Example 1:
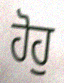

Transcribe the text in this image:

ਹੋਹੁ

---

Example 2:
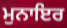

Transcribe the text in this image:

ਮੁਨਾਇਰ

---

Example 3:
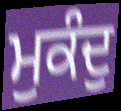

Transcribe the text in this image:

ਮੁਕੰਦੁ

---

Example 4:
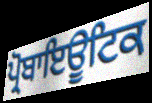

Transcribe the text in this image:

ਪ੍ਰੋਬਾਇਊਟਿਕ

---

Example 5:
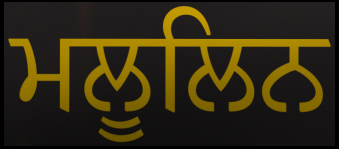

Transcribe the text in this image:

ਮਲੂਲਿਨ